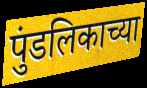
पुंडलिकाच्या